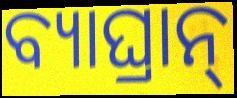
ବ୍ୟାଘ୍ରାନ୍